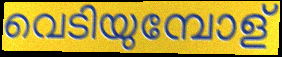
വെടിയുമ്പോള്